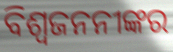
ବିଶ୍ୱଜନନୀଙ୍କର